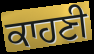
ਕਾਹਣੀ